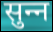
सुन्‍न